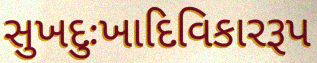
સુખદુઃખાદિવિકારરૂપ